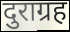
दुराग्रह